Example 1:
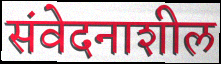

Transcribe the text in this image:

संवेदनाशील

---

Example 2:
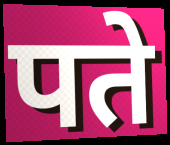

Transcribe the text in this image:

पते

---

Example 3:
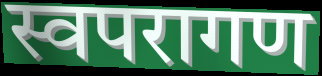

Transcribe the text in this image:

स्वपरागण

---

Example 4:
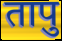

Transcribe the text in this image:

तापु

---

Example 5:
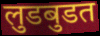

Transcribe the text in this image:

लुडबुडत